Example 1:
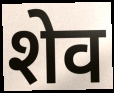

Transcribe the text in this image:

शेव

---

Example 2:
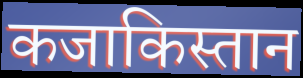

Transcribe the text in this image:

कजाकिस्तान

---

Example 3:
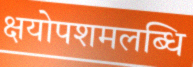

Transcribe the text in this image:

क्षयोपशमलब्धि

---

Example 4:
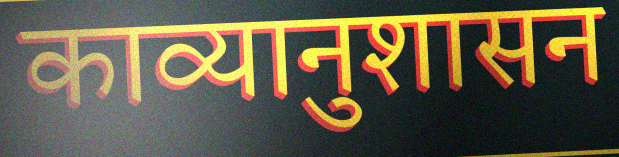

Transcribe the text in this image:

काव्यानुशासन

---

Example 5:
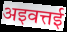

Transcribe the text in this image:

अइवत्तई